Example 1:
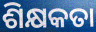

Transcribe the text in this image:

ଶିକ୍ଷକତା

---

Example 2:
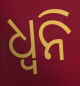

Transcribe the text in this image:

ଧ୍ୱନି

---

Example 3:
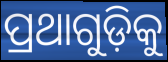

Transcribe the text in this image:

ପ୍ରଥାଗୁଡ଼ିକୁ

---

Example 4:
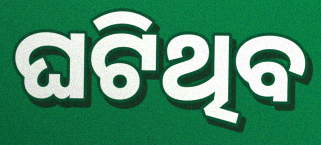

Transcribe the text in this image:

ଘଟିଥିବ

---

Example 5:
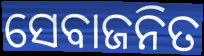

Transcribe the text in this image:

ସେବାଜନିତ